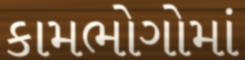
કામભોગોમાં